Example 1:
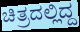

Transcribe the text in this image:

ಚಿತ್ರದಲ್ಲಿದ್ದ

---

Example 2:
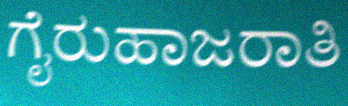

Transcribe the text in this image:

ಗೈರುಹಾಜರಾತಿ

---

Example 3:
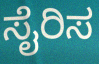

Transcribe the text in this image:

ಸೈರಿಸ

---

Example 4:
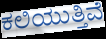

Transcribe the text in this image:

ಕಲಿಯುತ್ತಿವೆ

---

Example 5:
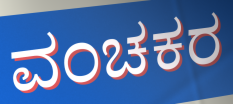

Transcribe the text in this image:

ವಂಚಕರ